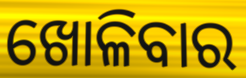
ଖୋଳିବାର